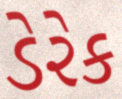
ડેરેક